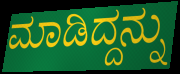
ಮಾಡಿದ್ದನ್ನು